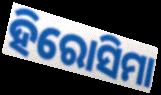
ହିରୋସିମା